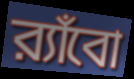
র‍্যাঁবো